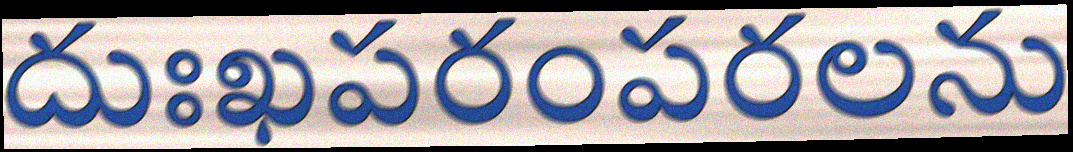
దుఃఖపరంపరలను